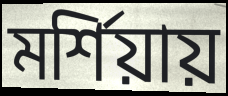
মর্শিয়ায়